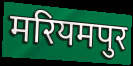
मरियमपुर